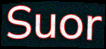
Suor